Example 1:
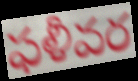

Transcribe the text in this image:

ఫళీవర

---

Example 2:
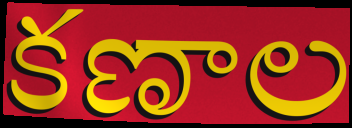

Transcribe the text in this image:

కణాల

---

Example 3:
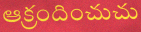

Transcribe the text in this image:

ఆక్రందించుచు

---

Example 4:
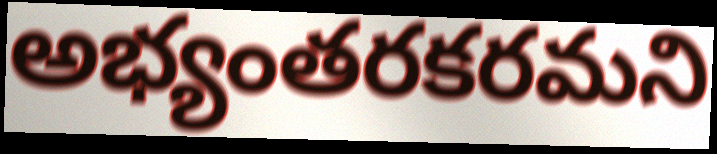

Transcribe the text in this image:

అభ్యంతరకరమని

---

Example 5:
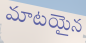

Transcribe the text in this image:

మాటయైన